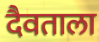
दैवताला